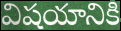
విషయానికి